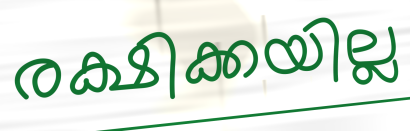
രക്ഷിക്കയില്ല